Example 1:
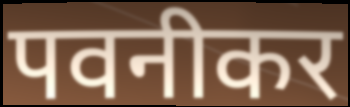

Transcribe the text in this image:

पवनीकर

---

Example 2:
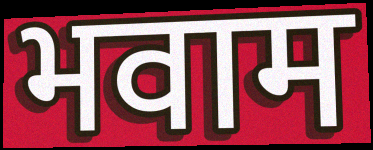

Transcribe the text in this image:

भवाम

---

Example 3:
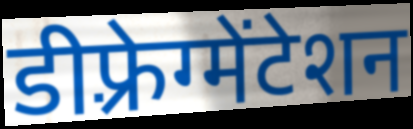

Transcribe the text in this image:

डीफ़्रेग्मेंटेशन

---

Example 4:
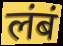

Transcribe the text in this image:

लंबं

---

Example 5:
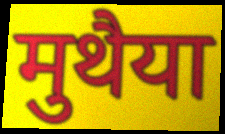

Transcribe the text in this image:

मुथैया